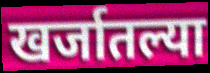
खर्जातल्या